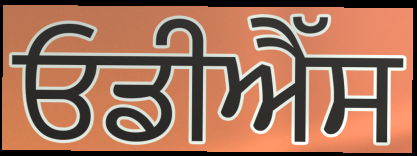
ਓਡੀਐੱਸ